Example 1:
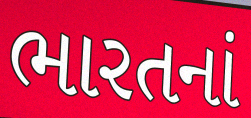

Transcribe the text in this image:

ભારતનાં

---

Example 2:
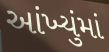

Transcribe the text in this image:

આંખ્યુંમાં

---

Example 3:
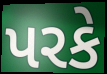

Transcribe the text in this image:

પરકે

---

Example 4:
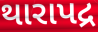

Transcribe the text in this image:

થારાપદ્ર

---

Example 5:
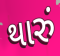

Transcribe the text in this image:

થારું